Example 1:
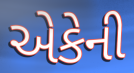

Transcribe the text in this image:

એકેની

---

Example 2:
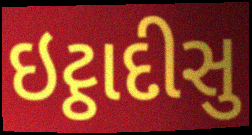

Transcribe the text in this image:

ઇટ્ઠાદીસુ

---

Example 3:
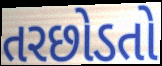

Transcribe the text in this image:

તરછોડતો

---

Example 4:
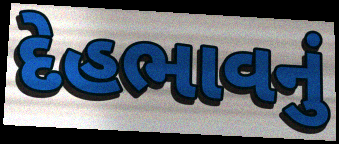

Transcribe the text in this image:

દેહભાવનું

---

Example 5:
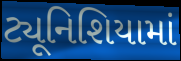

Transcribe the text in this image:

ટ્યૂનિશિયામાં